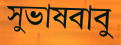
সুভাষবাবু